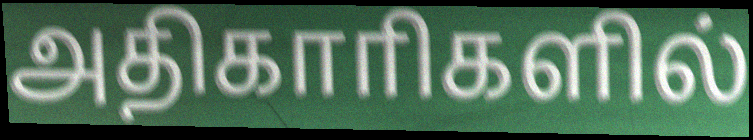
அதிகாரிகளில்